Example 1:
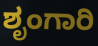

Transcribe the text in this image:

ಶೃಂಗಾರಿ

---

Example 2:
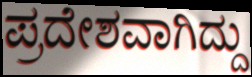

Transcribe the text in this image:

ಪ್ರದೇಶವಾಗಿದ್ದು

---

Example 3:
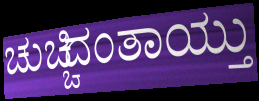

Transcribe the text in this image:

ಚುಚ್ಚಿದಂತಾಯ್ತು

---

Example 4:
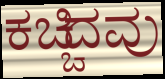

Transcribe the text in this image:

ಕಚ್ಚಿದವು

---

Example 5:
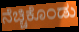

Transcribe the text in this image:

ನೆಚ್ಚಿಕೊಂಡು